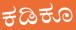
ಕಡಿಕೂ